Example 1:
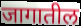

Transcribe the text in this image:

जागातील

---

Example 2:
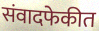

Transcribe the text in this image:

संवादफेकीत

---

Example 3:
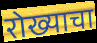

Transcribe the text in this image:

रोख्याचा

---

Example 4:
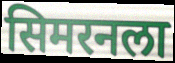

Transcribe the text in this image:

सिमरनला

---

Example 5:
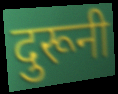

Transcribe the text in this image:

दुरूनी